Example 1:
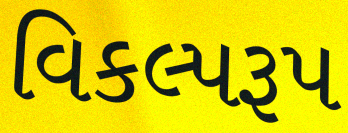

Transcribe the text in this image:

વિકલ્પરૂપ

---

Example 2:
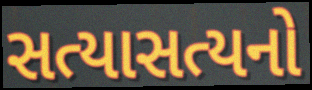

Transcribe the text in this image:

સત્યાસત્યનો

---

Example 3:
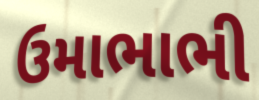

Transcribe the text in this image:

ઉમાભાભી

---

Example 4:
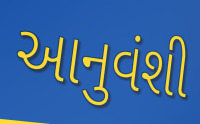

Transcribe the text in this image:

આનુવંશી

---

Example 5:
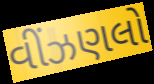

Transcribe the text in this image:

વીંઝણલો